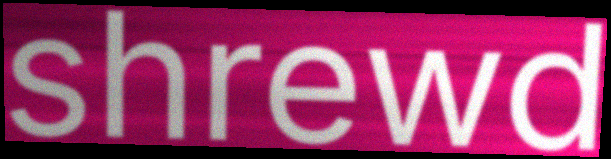
shrewd